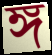
ঙ্গ